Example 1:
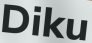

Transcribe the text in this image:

Diku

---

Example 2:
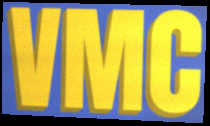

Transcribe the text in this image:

VMC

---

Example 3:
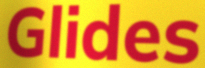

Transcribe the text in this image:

Glides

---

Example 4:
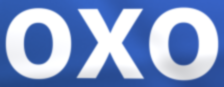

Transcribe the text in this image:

oxo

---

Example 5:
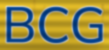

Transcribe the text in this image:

BCG